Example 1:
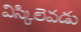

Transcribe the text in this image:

విస్కిలెవడు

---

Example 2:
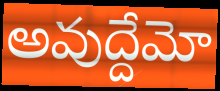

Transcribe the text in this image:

అవుద్దేమో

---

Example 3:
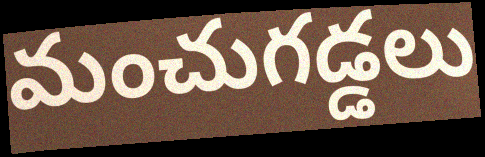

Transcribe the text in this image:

మంచుగడ్డలు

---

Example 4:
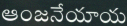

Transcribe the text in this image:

ఆంజనేయాయ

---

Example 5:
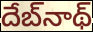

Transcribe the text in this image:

దేబ్‌నాథ్